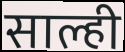
साल्ही